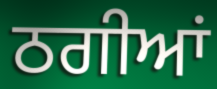
ਠਗੀਆਂ